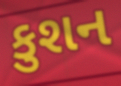
કુશન